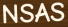
NSAS